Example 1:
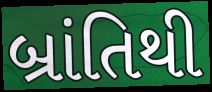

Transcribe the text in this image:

બ્રાંતિથી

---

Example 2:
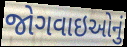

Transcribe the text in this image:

જોગવાઇઓનું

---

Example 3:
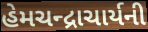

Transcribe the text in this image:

હેમચન્દ્રાચાર્યની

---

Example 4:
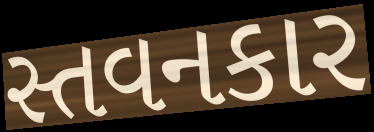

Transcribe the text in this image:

સ્તવનકાર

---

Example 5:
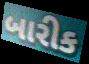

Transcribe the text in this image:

બારીક